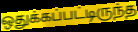
ஒதுக்கப்பட்டிருந்த